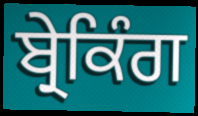
ਬ੍ਰੇਕਿੰਗ